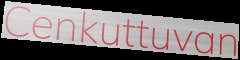
Cenkuttuvan